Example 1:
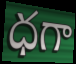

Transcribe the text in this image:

ధగా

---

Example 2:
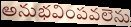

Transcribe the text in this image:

అనుభవింపవలెను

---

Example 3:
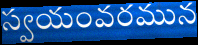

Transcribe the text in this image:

స్వయంవరమున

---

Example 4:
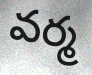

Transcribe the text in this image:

వర్మ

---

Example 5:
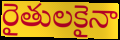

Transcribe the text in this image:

రైతులకైనా